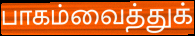
பாகம்வைத்துக்